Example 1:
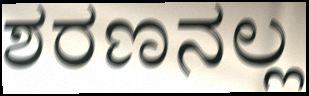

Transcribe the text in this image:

ಶರಣನಲ್ಲ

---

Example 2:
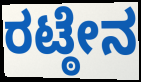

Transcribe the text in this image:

ರಟ್ಠೇನ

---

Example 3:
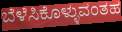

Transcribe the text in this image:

ಬೆಳೆಸಿಕೊಳ್ಳುವಂತಹ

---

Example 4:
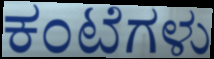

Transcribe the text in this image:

ಕಂಟೆಗಳು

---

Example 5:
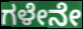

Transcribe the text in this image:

ಗಳೇನೇ